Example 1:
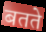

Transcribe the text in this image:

बतते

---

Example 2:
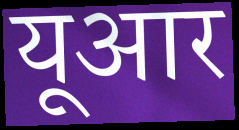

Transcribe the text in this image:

यूआर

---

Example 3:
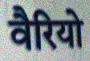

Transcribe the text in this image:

वैरियो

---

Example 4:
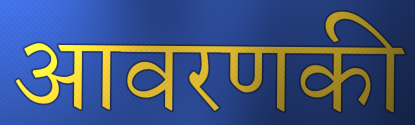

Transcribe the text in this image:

आवरणकी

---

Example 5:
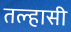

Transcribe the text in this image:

तल्हासी